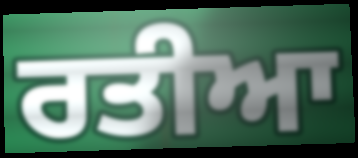
ਰਤੀਆ